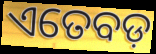
ଏତେବଡ଼